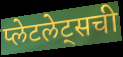
प्लेटलेट्‌सची